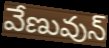
వేణువున్